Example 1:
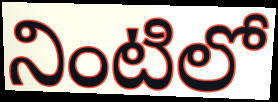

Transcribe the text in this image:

నింటిలో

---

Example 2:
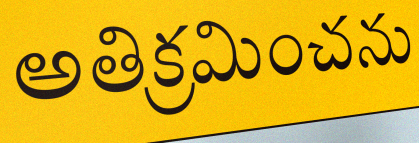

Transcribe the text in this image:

అతిక్రమించను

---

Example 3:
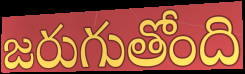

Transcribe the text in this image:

జరుగుతోంది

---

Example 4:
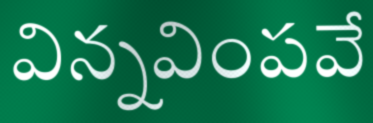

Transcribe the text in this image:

విన్నవింపవే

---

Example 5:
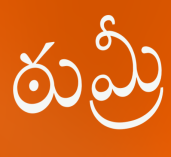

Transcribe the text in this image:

ఠుమ్రీ